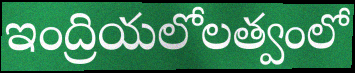
ఇంద్రియలోలత్వంలో